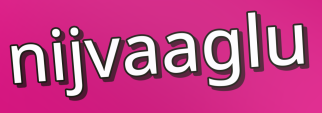
nijvaaglu